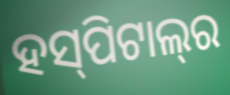
ହସ୍‍ପିଟାଲ୍‍ର